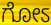
ಗೋಽ